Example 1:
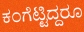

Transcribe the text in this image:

ಕಂಗೆಟ್ಟಿದ್ದರೂ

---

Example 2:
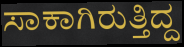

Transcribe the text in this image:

ಸಾಕಾಗಿರುತ್ತಿದ್ದ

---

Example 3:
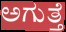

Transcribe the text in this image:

ಅಗುತ್ತೆ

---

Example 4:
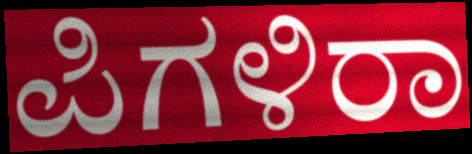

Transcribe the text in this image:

ಪಿಗಳಿರಾ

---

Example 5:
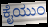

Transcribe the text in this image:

ಕೈಯುಂ